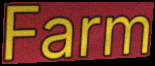
Farm